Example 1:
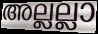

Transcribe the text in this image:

അല്ലല്ലാ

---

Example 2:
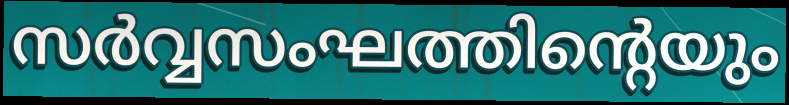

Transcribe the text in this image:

സർവ്വസംഘത്തിന്റെയും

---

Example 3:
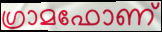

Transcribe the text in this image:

ഗ്രാമഫോണ്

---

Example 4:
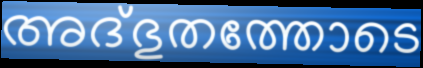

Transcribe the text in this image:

അദ്ഭുതത്തോടെ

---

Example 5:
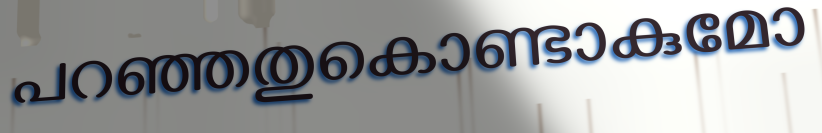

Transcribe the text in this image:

പറഞ്ഞതുകൊണ്ടാകുമോ